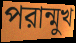
পরান্মুখ